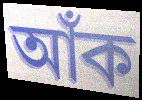
আঁক